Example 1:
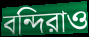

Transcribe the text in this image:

বন্দিরাও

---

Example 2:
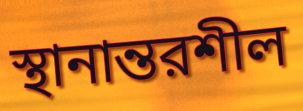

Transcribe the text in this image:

স্থানান্তরশীল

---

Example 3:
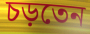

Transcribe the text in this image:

চড়তেন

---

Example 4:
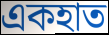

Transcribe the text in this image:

একহাত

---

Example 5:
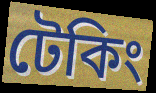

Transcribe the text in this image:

টেকিং